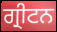
ਗ੍ਰੀਟਨ